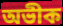
অভীক